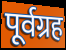
पूर्वग्रह